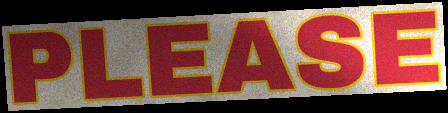
PLEASE